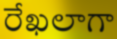
రేఖలాగా